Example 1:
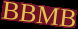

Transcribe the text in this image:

BBMB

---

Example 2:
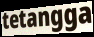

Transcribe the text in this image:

tetangga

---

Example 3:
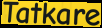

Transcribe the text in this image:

Tatkare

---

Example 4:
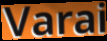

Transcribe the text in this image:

Varai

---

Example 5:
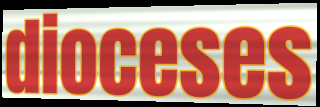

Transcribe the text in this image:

dioceses